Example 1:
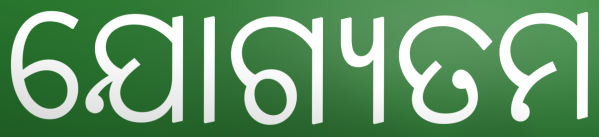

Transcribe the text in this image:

ଯୋଗ୍ୟତମ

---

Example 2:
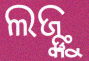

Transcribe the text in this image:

ଲଜ୍ଙ୍କୁ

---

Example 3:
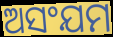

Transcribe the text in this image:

ଅସଂଯମ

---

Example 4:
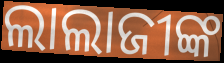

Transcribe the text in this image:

ଲାଲାଜୀଙ୍କ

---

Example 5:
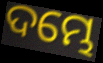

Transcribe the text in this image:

ଦମ୍ଭେ